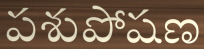
పశుపోషణ